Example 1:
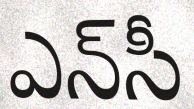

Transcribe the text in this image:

ఎన్‌సీ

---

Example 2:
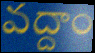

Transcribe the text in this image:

వద్దాం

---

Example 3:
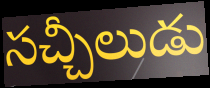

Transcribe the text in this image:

సచ్చీలుడు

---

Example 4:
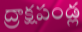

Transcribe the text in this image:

ద్రాక్షపండ్ల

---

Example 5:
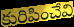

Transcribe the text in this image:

కురిపించేవి